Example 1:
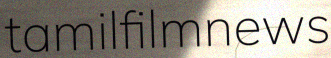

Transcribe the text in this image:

tamilfilmnews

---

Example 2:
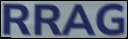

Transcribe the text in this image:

RRAG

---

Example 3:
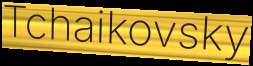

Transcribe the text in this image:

Tchaikovsky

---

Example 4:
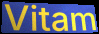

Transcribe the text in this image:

Vitam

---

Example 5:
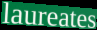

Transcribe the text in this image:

laureates